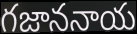
గజాననాయ